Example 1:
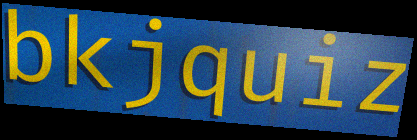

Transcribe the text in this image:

bkjquiz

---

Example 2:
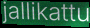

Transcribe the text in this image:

jallikattu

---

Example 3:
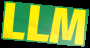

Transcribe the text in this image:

LLM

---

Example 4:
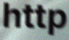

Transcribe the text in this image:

http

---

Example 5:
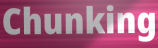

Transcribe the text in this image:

Chunking